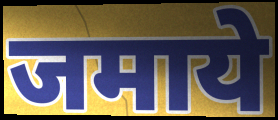
जमाये